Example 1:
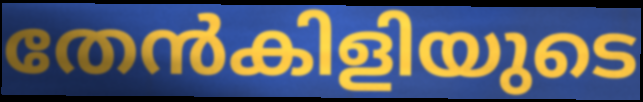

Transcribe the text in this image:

തേൻകിളിയുടെ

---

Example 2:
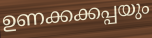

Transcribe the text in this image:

ഉണക്കക്കപ്പയും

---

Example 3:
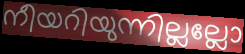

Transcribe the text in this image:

നീയറിയുന്നില്ലല്ലോ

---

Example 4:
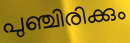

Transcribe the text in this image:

പുഞ്ചിരിക്കും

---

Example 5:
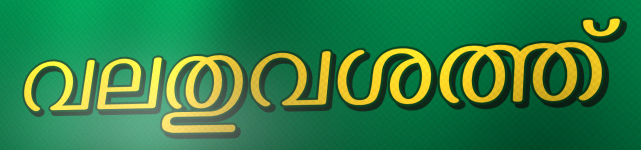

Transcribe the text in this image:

വലതുവശത്ത്